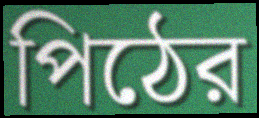
পিঠের